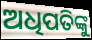
ଅଧିପତିଙ୍କୁ